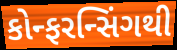
કોન્ફરન્સિંગથી